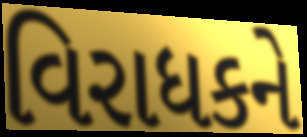
વિરાધકને